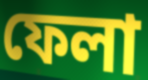
ফেলা